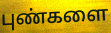
புண்களை